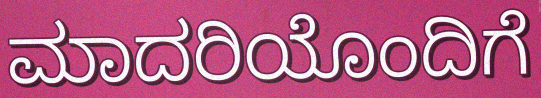
ಮಾದರಿಯೊಂದಿಗೆ